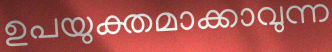
ഉപയുക്തമാക്കാവുന്ന